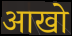
आखो